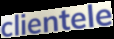
clientele